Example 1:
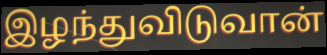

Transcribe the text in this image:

இழந்துவிடுவான்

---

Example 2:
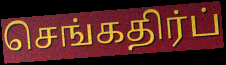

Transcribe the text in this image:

செங்கதிர்ப்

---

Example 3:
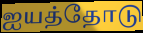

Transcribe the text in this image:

ஐயத்தோடு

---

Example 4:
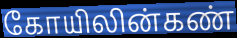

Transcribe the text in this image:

கோயிலின்கண்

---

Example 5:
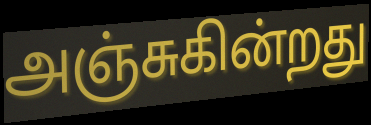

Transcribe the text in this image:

அஞ்சுகின்றது